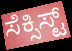
ಸೆಕ್ಸಿಸ್ಟ್